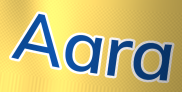
Aara